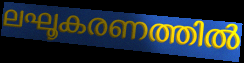
ലഘൂകരണത്തിൽ